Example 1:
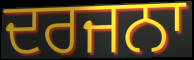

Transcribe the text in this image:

ਦਰਜਨਾ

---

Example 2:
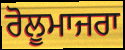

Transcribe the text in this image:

ਰੋਲੂਮਾਜਰਾ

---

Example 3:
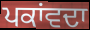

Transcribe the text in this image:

ਪਕਾਂਵਦਾ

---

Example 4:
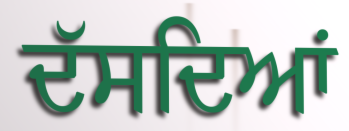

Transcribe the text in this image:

ਦੱਸਦਿਆਂ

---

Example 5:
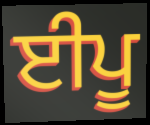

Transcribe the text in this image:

ਈਪੂ